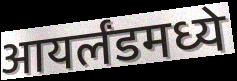
आयर्लंडमध्ये